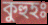
কুহুহঃ